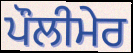
ਪੌਲੀਮੇਰ